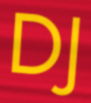
DJ